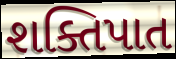
શક્તિપાત